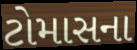
ટોમાસના